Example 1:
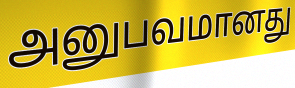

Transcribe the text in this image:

அனுபவமானது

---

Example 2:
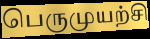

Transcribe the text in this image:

பெருமுயற்சி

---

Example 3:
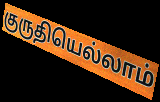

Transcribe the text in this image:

குருதியெல்லாம்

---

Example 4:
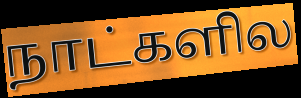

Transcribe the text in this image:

நாட்களில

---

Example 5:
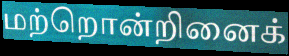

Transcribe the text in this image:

மற்றொன்றினைக்